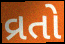
વ્રતો